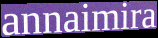
annaimira